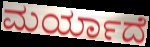
ಮರ್ಯಾದೆ